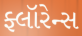
ફ્લૉરેન્સ